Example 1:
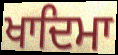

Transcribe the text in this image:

ਖਾਦਿਮਾ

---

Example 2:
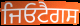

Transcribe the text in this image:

ਜਿਓਟੈਗਸ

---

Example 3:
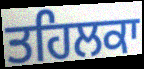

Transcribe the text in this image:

ਤਹਿਲਕਾ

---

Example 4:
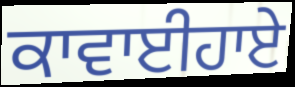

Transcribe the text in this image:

ਕਾਵਾਈਹਾਏ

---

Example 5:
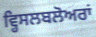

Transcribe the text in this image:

ਵ੍ਹਿਸਲਬਲੋਅਰਾਂ